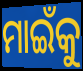
ମାଇଁକୁ